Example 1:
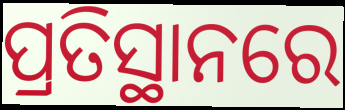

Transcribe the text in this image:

ପ୍ରତିସ୍ଥାନରେ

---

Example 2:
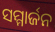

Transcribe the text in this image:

ସମ୍ମାର୍ଜନ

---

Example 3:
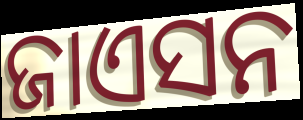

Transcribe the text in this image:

ଜାଏସନ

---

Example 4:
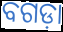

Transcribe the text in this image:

ବଗଡ଼ା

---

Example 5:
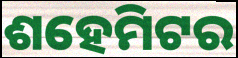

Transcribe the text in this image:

ଶହେମିଟର